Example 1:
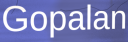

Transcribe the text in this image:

Gopalan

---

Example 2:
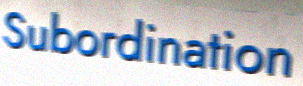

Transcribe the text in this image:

Subordination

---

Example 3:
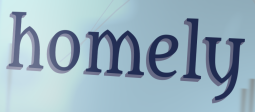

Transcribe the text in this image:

homely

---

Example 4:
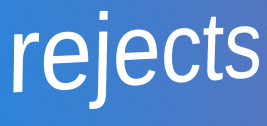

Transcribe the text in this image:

rejects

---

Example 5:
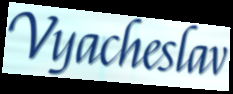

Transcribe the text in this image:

Vyacheslav